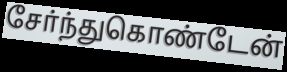
சேர்ந்துகொண்டேன்